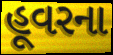
હૂવરના